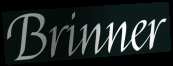
Brinner